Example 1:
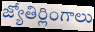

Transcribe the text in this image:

జ్యోతిర్లింగాలు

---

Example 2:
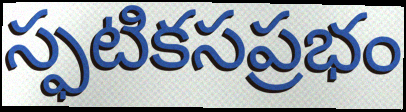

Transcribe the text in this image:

స్ఫటికసప్రభం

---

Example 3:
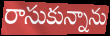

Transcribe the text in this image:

రాసుకున్నాను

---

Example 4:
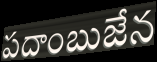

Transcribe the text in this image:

పదాంబుజేన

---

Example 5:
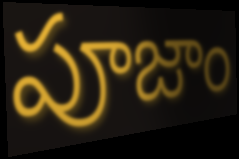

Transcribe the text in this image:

పూజాం